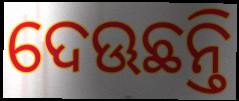
ଦେଊଛନ୍ତି